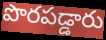
పొరపడ్డారు